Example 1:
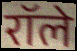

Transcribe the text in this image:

रॉले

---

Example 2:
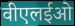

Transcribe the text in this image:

वीएलईओ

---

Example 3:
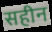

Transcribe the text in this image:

सहीन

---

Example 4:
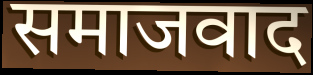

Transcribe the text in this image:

समाजवाद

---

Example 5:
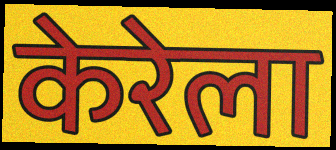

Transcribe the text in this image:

केरेला